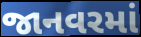
જાનવરમાં